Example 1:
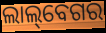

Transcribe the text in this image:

ଲାଲ୍‌ବେଗର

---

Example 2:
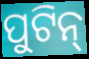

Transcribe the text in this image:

ପୁଟିନ୍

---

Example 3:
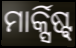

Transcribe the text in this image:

ମାର୍କ୍ସିଷ୍ଟ୍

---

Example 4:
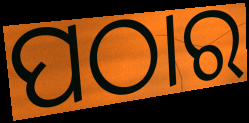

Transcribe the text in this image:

ପଠାର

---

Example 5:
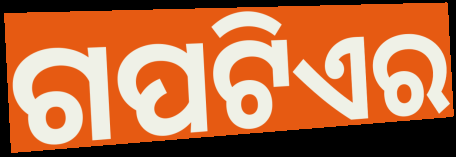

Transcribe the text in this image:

ଗପଟିଏର